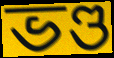
ভণ্ড